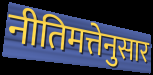
नीतिमत्तेनुसार